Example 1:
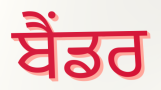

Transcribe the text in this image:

ਬੈਂਡਰ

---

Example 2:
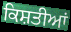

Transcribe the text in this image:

ਕਿਸ਼ਤੀਆਂ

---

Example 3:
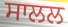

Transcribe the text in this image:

ਸਾਲਲ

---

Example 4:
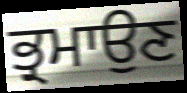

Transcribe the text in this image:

ਭ੍ਰਮਾਉਣ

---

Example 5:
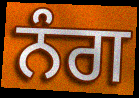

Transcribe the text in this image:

ਨੰਗ